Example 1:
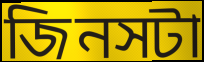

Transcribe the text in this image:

জিনসটা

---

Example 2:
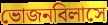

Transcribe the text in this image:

ভোজনবিলাসে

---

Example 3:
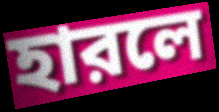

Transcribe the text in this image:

হারলে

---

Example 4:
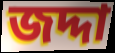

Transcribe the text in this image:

জদ্দা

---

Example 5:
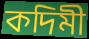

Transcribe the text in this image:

কদিমী